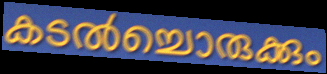
കടൽച്ചൊരുക്കും